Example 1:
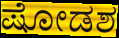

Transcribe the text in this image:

ಷೋಡಶ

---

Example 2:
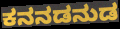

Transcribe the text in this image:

ಕನನಡನುಡ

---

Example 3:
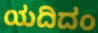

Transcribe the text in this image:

ಯದಿದಂ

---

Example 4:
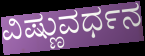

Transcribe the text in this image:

ವಿಷ್ಣುವರ್ಧನ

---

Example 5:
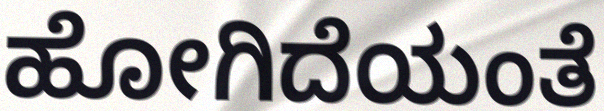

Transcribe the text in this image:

ಹೋಗಿದೆಯಂತೆ